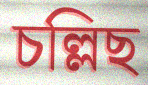
চল্লিছ